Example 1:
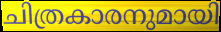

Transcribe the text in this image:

ചിത്രകാരനുമായി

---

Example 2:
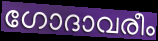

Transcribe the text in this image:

ഗോദാവരീം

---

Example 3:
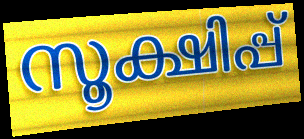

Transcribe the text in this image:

സൂക്ഷിപ്പ്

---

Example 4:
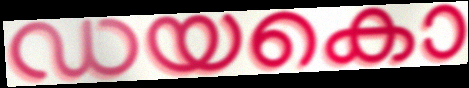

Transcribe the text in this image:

ഡയകൊ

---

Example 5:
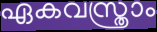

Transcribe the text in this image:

ഏകവസ്ത്രാം